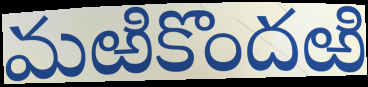
మఱికొందఱి